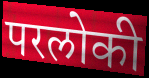
परलोकी